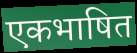
एकभाषित